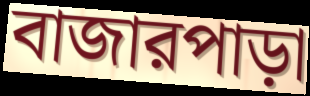
বাজারপাড়া